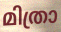
മിത്രാ